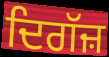
ਦਿਗੱਜ਼